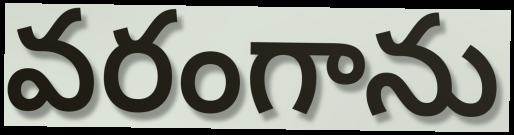
వరంగాను